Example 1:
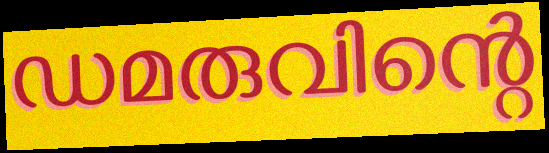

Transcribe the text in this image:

ഡമരുവിന്റെ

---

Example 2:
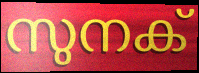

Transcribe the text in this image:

സുനക്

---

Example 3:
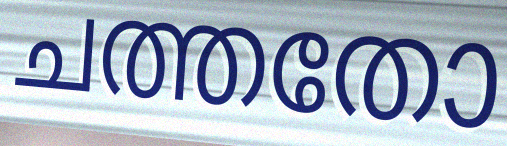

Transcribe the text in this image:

ചത്തതോ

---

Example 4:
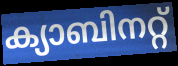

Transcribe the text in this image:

ക്യാബിനറ്റ്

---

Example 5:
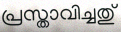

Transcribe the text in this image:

പ്രസ്താവിച്ചതു്